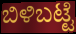
ಬಿಳಿಬಟ್ಟೆ